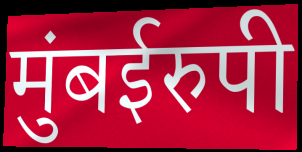
मुंबईरुपी